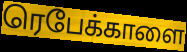
ரெபேக்காளை